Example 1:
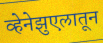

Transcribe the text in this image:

व्हेनेझुएलातून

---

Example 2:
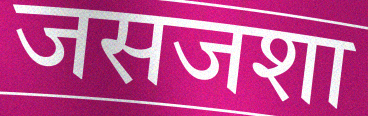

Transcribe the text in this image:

जसजशा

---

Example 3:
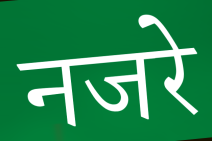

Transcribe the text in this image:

नजरे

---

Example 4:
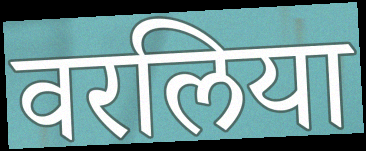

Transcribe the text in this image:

वरलिया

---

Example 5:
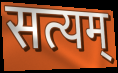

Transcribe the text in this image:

सत्यम्